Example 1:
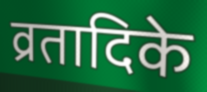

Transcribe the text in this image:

व्रतादिके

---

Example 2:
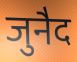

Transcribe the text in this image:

जुनैद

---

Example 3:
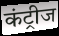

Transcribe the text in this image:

कंट्रीज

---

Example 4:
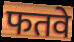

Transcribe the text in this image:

फतवे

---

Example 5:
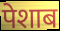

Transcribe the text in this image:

पेशाब